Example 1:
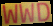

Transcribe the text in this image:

WWD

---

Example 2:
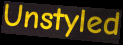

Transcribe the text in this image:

Unstyled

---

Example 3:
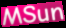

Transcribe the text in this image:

MSun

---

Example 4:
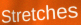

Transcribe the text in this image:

Stretches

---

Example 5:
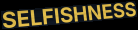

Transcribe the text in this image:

SELFISHNESS